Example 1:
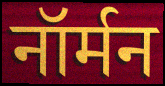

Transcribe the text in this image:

नॉर्मन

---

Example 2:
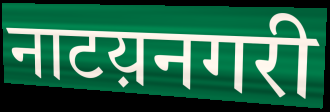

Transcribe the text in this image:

नाटय़नगरी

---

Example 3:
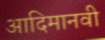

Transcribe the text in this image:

आदिमानवी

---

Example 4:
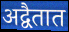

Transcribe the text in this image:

अद्वैतात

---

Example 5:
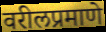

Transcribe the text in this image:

वरीलप्रमाणे